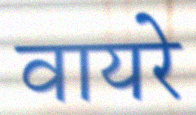
वायरे